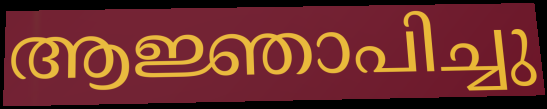
ആജ്ഞാപിച്ചു